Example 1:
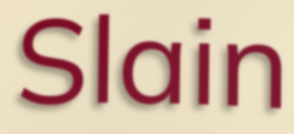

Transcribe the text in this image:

Slain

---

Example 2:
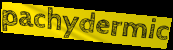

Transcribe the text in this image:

pachydermic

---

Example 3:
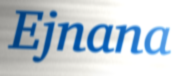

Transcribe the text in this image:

Ejnana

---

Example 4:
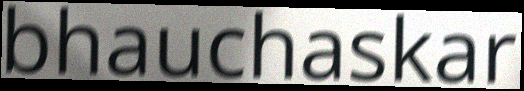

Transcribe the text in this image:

bhauchaskar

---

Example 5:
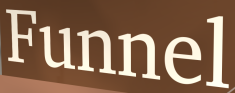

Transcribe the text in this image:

Funnel